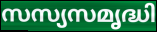
സസ്യസമൃദ്ധി